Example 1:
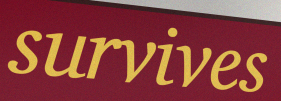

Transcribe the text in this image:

survives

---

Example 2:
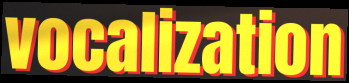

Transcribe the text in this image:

vocalization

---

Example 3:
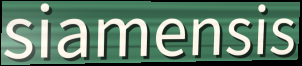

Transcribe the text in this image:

siamensis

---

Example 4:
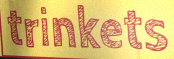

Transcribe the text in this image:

trinkets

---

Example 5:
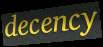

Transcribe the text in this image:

decency